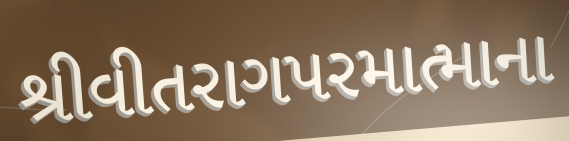
શ્રીવીતરાગપરમાત્માના